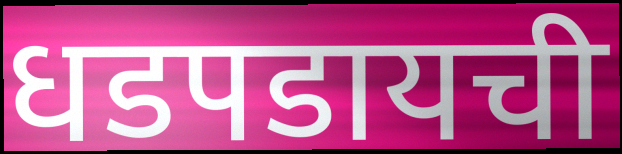
धडपडायची